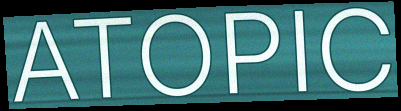
ATOPIC